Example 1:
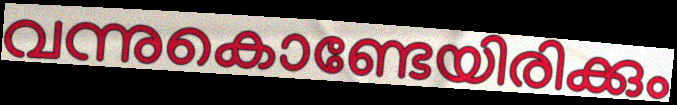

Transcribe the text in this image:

വന്നുകൊണ്ടേയിരിക്കും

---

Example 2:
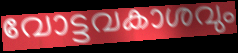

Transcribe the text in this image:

വോട്ടവകാശവും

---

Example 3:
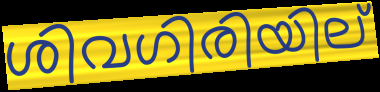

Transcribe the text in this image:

ശിവഗിരിയില്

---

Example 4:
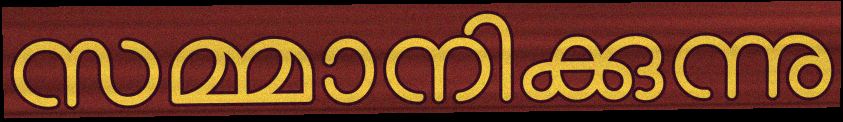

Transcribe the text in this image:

സമ്മാനിക്കുന്നു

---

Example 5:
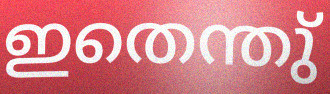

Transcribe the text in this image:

ഇതെന്തു്